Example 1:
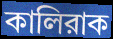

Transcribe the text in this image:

কালিরাক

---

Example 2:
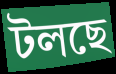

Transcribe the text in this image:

টলছে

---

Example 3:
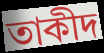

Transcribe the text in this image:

তাকীদ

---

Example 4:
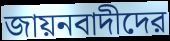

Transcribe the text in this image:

জায়নবাদীদের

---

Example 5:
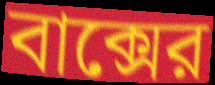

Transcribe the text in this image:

বাক্সের